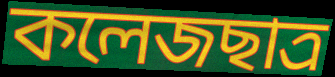
কলেজছাত্র